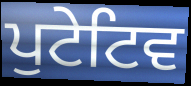
ਪੁਟੇਟਿਵ